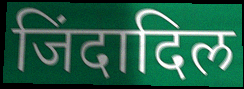
जिंदादिल